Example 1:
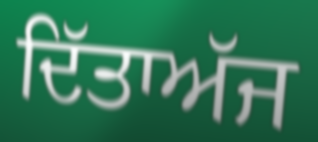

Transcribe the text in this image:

ਦਿੱਤਾਅੱਜ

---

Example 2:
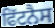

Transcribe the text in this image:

ਫਿੱਟਨੈਸ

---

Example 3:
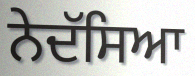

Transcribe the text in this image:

ਨੇਦੱਸਿਆ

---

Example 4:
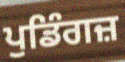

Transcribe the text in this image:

ਪੁਡਿੰਗਜ਼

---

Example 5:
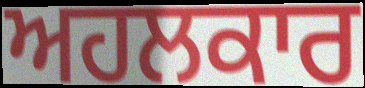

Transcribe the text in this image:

ਅਹਲਕਾਰ